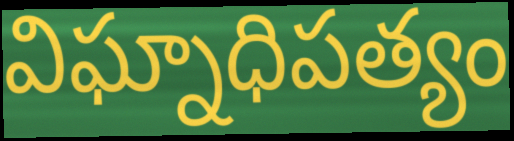
విఘ్నాధిపత్యం